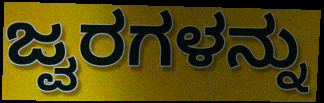
ಜ್ವರಗಳನ್ನು